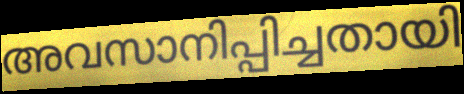
അവസാനിപ്പിച്ചതായി